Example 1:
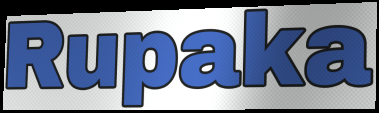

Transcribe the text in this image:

Rupaka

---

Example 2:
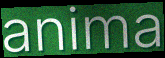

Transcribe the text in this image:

anima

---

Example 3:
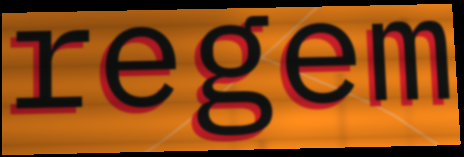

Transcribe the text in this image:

regem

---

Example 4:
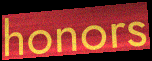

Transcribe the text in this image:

honors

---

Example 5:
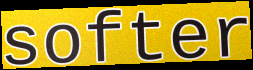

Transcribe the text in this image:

softer